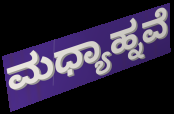
ಮಧ್ಯಾಹ್ನವೆ